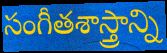
సంగీతశాస్త్రాన్ని